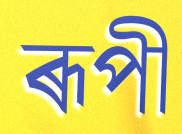
ৰূপী